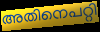
അതിനെപറ്റി